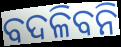
ବଦଳିବନି